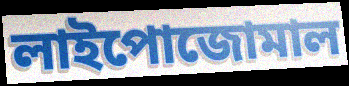
লাইপোজোমাল